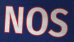
NOS